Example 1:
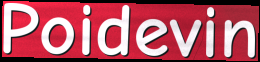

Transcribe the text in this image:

Poidevin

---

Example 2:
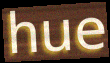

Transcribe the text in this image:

hue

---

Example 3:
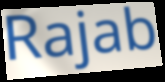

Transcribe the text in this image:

Rajab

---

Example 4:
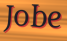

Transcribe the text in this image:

Jobe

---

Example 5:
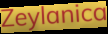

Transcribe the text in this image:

Zeylanica